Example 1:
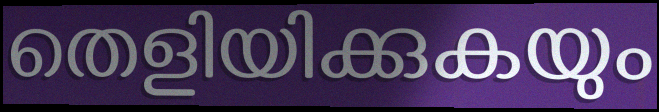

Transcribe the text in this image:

തെളിയിക്കുകയും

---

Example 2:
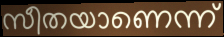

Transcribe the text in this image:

സീതയാണെന്ന്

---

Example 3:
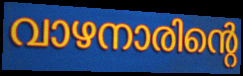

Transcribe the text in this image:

വാഴനാരിന്റെ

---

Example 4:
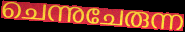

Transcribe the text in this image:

ചെന്നുചേരുന്ന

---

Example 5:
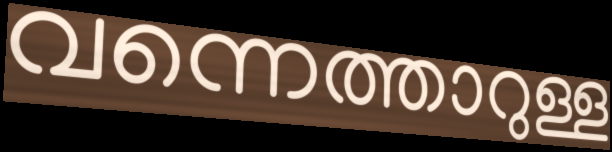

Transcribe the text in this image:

വന്നെത്താറുള്ള